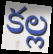
కల్ల